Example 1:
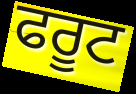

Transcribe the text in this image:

ਫਰੂਟ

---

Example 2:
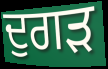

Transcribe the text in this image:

ਦੁਗੜ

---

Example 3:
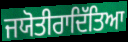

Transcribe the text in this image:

ਜਯੋਤੀਰਾਦਿੱਤਿਆ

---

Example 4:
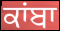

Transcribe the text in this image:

ਕਾਂਬਾ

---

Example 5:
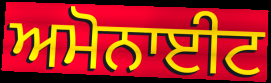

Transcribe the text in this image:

ਅਮੋਨਾਈਟ